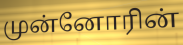
முன்னோரின்